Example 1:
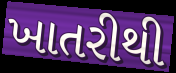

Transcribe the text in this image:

ખાતરીથી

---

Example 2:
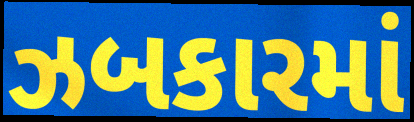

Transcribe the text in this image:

ઝબકારમાં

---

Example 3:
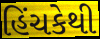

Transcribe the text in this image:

હિંચકેથી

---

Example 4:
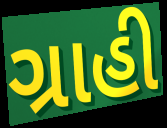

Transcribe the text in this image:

ગ્રાહી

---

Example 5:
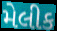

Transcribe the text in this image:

મેલીક